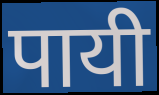
पायी